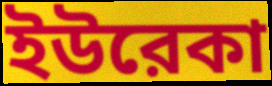
ইউরেকা